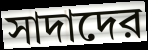
সাদাদের